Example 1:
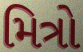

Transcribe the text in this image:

મિત્રો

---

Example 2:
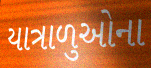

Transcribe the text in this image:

યાત્રાળુઓના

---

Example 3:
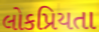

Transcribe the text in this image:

લોકપ્રિયતા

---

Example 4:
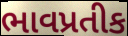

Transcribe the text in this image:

ભાવપ્રતીક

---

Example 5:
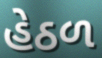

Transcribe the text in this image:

હેઠળ